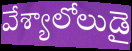
వేశ్యాలోలుడై